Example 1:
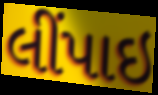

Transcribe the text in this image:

લીંપાઇ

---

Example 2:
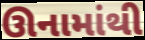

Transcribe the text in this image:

ઊનામાંથી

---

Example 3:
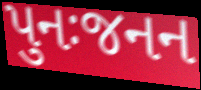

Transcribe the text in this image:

પુનઃજનન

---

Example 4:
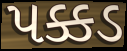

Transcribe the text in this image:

પક્કડ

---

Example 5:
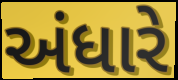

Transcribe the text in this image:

અંધારે